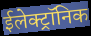
ईलेक्ट्रॉनिक